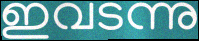
ഇവടന്നു